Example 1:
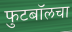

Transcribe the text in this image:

फुटबॉलचा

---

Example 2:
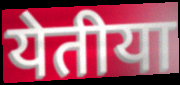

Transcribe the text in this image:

येतीया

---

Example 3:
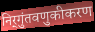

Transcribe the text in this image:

निर्गुंतवणुकीकरण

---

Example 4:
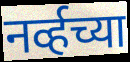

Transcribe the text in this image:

नर्व्हच्या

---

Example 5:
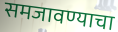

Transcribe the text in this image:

समजावण्याचा